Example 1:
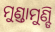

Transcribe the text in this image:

ମୁଣ୍ଡାମୁଣ୍ଡି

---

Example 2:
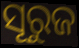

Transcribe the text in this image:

ସୂରୁଜ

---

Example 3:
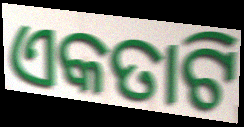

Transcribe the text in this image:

ଏକତାଟି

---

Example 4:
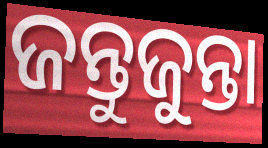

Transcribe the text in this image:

ଜନ୍ତୁଜୁନ୍ତା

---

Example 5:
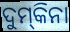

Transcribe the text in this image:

ଦୁମ୍‌କିନା